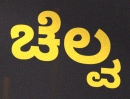
ಚೆಲ್ವ